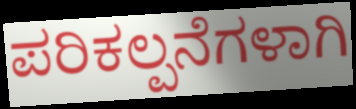
ಪರಿಕಲ್ಪನೆಗಳಾಗಿ